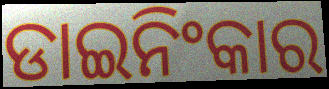
ଡାଇନିଂକାର